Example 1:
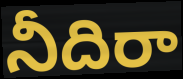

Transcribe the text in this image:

నీదిరా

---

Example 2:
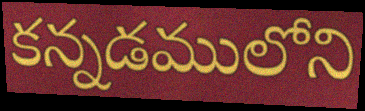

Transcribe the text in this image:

కన్నడములోని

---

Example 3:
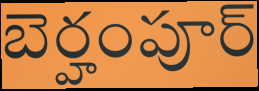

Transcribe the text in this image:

బెర్హంపూర్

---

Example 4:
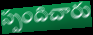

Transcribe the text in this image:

స్పందిచారు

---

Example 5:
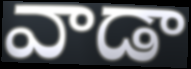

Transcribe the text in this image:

వాడా